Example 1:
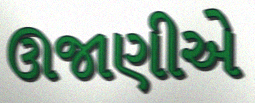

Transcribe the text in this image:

ઊજાણીએ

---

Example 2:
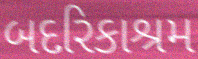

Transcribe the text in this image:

બદરિકાશ્રમ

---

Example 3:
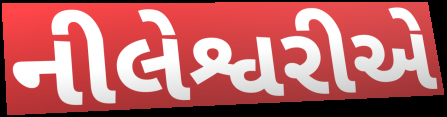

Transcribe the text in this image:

નીલેશ્વરીએ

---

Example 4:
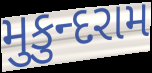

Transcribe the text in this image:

મુકુન્દરામ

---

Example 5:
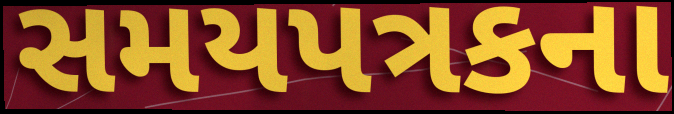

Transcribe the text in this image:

સમયપત્રકના